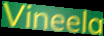
Vineela